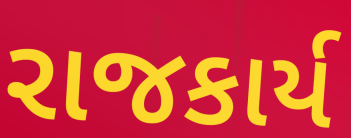
રાજકાર્ય